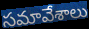
సమావేశాలు